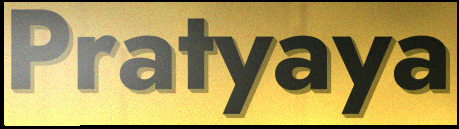
Pratyaya